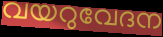
വയറുവേദന